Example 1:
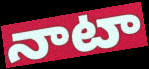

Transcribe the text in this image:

నాటా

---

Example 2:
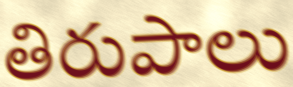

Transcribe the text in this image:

తిరుపాలు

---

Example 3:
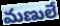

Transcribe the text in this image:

మణులే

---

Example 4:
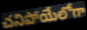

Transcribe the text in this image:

చనిపోయేలోగా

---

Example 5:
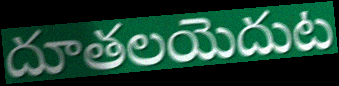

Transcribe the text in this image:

దూతలయెదుట